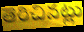
తెరిచినట్లు